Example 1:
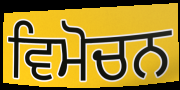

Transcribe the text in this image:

ਵਿਮੋਚਨ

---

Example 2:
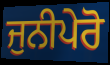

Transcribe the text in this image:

ਜੁਨੀਪੇਰੋ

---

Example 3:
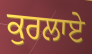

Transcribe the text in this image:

ਕੁਰਲਾਏ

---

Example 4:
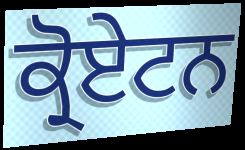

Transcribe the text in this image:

ਕ੍ਰੋਏਟਨ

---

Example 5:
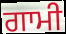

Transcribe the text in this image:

ਗਾਮੀ